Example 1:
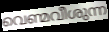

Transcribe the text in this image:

വെണ്മവീശുന്ന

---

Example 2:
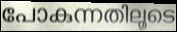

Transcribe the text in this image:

പോകുന്നതിലൂടെ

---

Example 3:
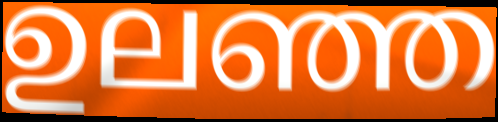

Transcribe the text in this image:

ഉലഞ്ഞ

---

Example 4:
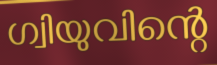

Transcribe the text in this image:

ഗ്വിയുവിന്റെ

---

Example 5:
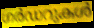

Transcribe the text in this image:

ഗർഡറുകൾ